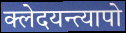
क्लेदयन्त्यापो